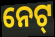
ନେଟ୍